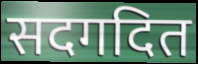
सदगदित